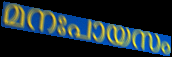
മനഃപായസം